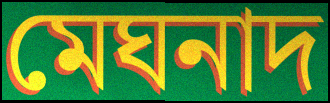
মেঘনাদ